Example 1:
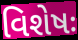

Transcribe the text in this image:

વિશેષઃ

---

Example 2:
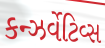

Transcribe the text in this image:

કન્ઝર્વેટિવ્સ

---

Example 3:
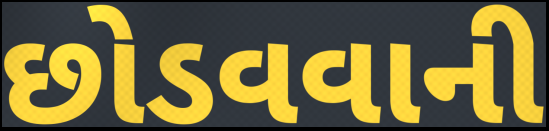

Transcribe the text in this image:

છોડવવાની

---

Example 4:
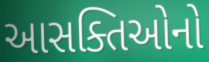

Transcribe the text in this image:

આસક્તિઓનો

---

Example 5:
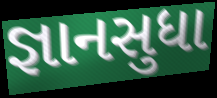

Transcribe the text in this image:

જ્ઞાનસુધા